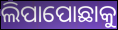
ଲିପାପୋଛାକୁ